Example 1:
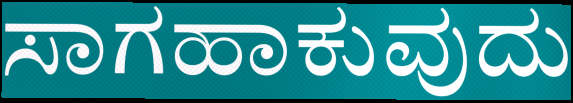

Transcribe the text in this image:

ಸಾಗಹಾಕುವುದು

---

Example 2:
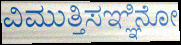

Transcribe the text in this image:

ವಿಮುತ್ತಿಸಞ್ಞಿನೋ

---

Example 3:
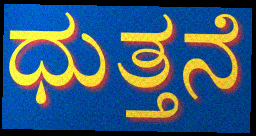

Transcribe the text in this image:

ಧುತ್ತನೆ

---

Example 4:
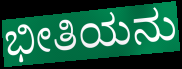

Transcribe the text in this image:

ಭೀತಿಯನು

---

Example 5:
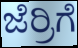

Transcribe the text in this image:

ಜೆರ್ರಿಗೆ